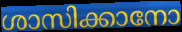
ശാസിക്കാനോ